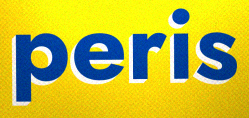
peris